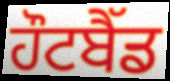
ਹੌਟਬੈੱਡ